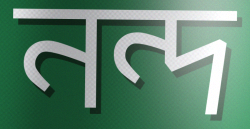
নন্দ